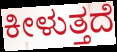
ಕೀಳುತ್ತದೆ